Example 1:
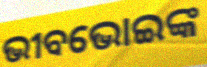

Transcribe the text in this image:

ଭୀବଭୋଇଙ୍କ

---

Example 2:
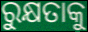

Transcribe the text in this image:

ରୁକ୍ଷତାକୁ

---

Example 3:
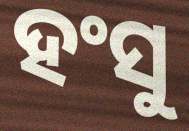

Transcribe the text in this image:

ହଂସୁ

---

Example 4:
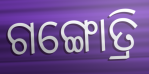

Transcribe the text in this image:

ଗଙ୍ଗୋତ୍ରି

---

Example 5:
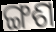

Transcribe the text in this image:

ଙ୍ଗଶ